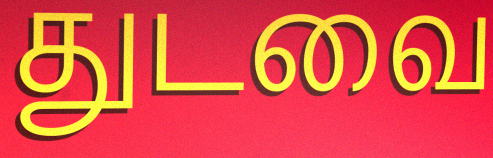
துடவை